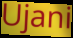
Ujani